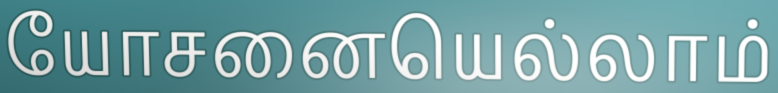
யோசனையெல்லாம்